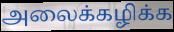
அலைக்கழிக்க